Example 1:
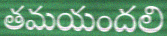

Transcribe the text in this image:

తమయందలి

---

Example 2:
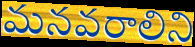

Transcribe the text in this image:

మనవరాలిని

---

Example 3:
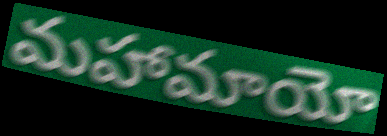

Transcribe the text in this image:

మహామాయో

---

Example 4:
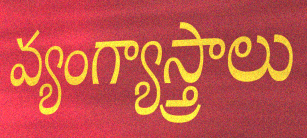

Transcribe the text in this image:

వ్యంగ్యాస్త్రాలు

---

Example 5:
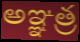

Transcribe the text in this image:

అఞ్ఞత్ర